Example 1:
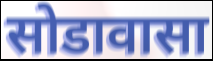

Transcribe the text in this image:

सोडावासा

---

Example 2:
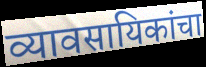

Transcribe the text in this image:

व्यावसायिकांचा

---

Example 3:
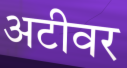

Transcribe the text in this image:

अटीवर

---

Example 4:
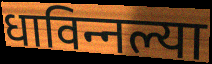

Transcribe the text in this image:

धाविन्नल्या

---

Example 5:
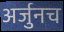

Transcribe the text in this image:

अर्जुनच